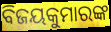
ବିଜୟକୁମାରଙ୍କ